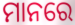
ମାନରେ